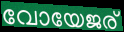
വോയേജര്